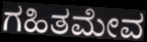
ಗಹಿತಮೇವ